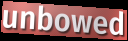
unbowed